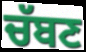
ਚੱਬਣ